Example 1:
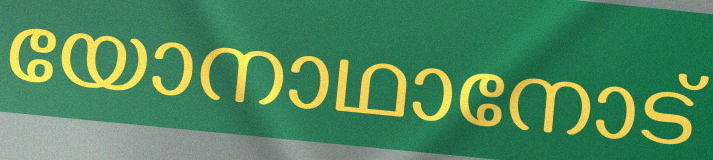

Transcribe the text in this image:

യോനാഥാനോട്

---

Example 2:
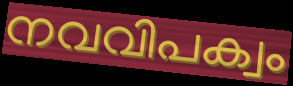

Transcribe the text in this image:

നവവിപക്വം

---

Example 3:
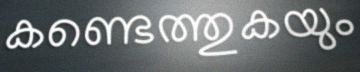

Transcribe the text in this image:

കണ്ടെത്തുകയും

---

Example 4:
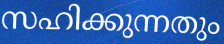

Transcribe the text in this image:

സഹിക്കുന്നതും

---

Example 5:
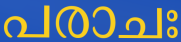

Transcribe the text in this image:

പരാചഃ